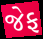
જેફ